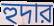
হুদার